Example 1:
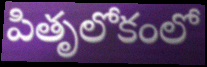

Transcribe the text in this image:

పితృలోకంలో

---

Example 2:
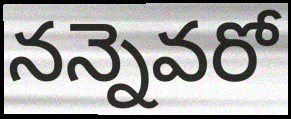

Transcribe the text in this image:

నన్నెవరో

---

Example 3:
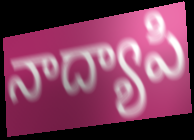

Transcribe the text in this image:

నాద్యాపి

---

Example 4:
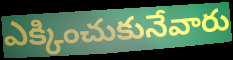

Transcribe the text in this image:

ఎక్కించుకునేవారు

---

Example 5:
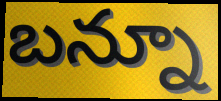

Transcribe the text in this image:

బన్నూ